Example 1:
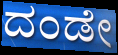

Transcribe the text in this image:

ದಂಡೇ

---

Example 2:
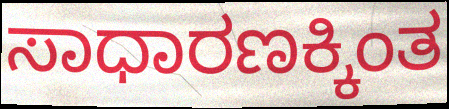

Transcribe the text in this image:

ಸಾಧಾರಣಕ್ಕಿಂತ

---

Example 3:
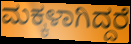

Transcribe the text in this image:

ಮಕ್ಕಳಾಗಿದ್ದರೆ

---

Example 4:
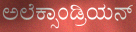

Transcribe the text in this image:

ಅಲೆಕ್ಸಾಂಡ್ರಿಯನ್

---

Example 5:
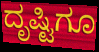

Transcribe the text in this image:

ದೃಷ್ಟಿಗೂ